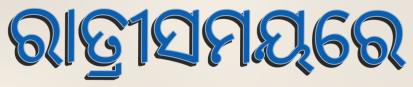
ରାତ୍ରୀସମୟରେ